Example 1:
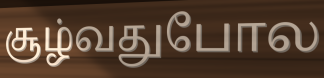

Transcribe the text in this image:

சூழ்வதுபோல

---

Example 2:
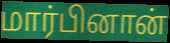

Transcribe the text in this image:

மார்பினான்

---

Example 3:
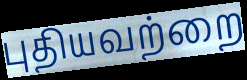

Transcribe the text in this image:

புதியவற்றை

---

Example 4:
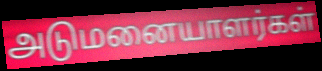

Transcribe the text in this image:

அடுமனையாளர்கள்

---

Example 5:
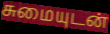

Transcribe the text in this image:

சுமையுடன்